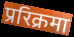
प्ररिक्रमा